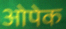
ओपेक